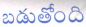
బడుతోంది